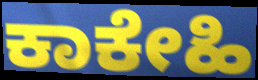
ಕಾಕೇಹಿ